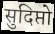
सुदिप्तो